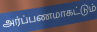
அர்ப்பணமாகட்டும்